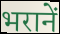
भरानें